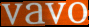
vavo